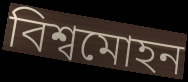
বিশ্বমোহন